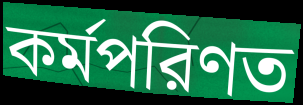
কর্মপরিণত